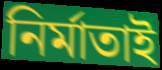
নির্মাতাই